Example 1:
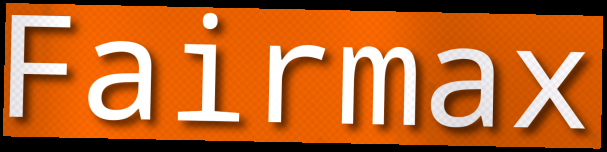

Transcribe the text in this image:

Fairmax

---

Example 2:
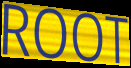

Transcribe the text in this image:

ROOT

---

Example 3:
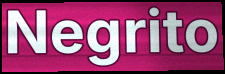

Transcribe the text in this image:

Negrito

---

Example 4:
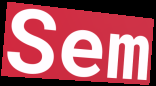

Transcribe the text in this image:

Sem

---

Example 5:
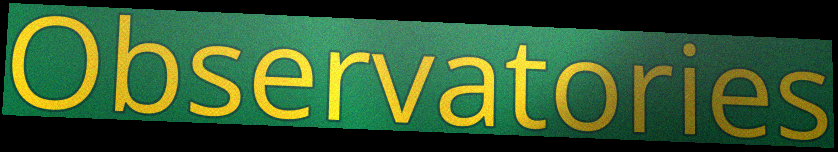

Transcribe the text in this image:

Observatories